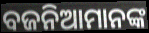
ବଜନିଆମାନଙ୍କ